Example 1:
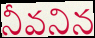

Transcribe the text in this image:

నీవనిన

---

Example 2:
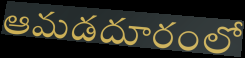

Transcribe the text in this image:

ఆమడదూరంలో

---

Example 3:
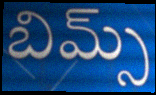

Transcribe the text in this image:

బిమ్స్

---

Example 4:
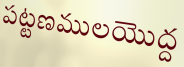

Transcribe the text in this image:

పట్టణములయొద్ద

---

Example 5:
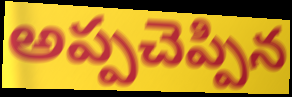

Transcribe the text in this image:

అప్పచెప్పిన